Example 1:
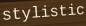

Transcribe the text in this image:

stylistic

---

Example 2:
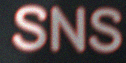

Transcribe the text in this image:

SNS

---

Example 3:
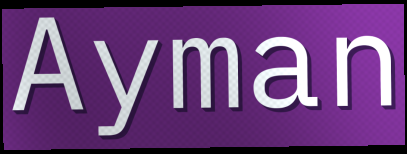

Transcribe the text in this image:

Ayman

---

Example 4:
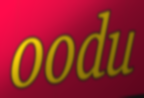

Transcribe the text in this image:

oodu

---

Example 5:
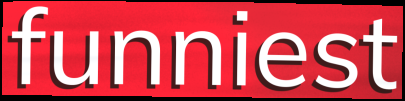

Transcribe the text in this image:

funniest